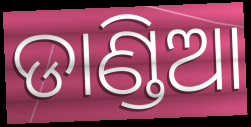
ଡାଣ୍ଡିଆ